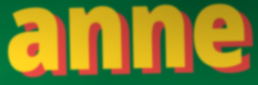
anne